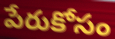
పేరుకోసం